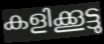
കളിക്കൂട്ടു